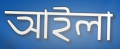
আইলা